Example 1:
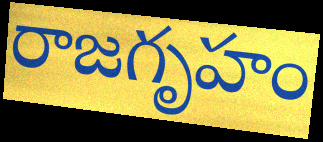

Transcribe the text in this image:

రాజగృహం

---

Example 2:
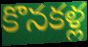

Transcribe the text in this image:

కొనకళ్ల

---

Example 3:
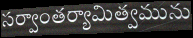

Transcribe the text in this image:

సర్వాంతర్యామిత్వమును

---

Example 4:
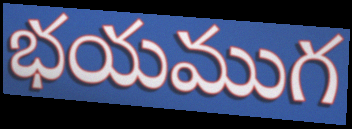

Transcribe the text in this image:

భయముగ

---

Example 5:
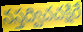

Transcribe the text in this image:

నస్తద్విచచక్షిరే